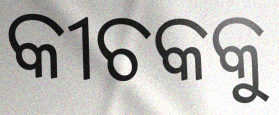
କୀଚକକୁ